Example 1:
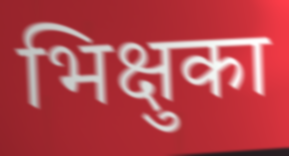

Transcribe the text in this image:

भिक्षुका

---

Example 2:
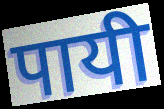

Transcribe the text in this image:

पायी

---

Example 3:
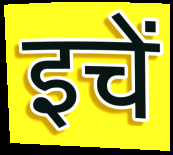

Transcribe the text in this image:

इचें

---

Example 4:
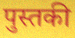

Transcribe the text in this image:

पुस्तकी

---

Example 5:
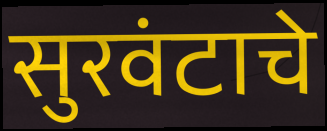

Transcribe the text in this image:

सुरवंटाचे